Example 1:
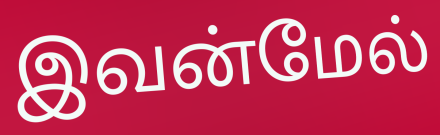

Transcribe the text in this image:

இவன்மேல்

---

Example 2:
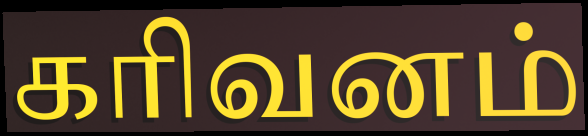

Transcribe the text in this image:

கரிவனம்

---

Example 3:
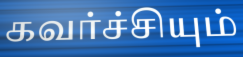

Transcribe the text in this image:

கவர்ச்சியும்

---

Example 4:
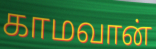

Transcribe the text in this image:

காமவான்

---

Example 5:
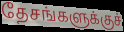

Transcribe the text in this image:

தேசங்களுக்குச்